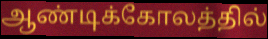
ஆண்டிக்கோலத்தில்